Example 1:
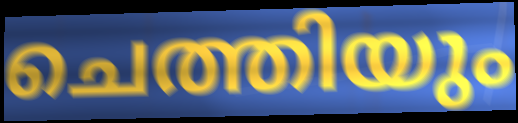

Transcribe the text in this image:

ചെത്തിയും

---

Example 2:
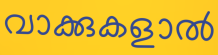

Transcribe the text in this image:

വാക്കുകളാൽ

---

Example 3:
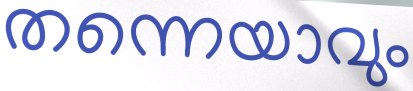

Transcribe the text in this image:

തന്നെയാവും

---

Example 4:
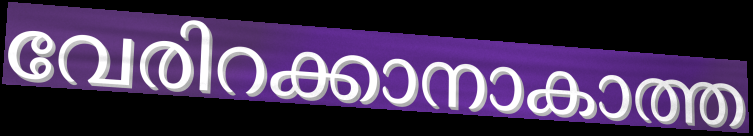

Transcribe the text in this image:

വേരിറക്കാനാകാത്ത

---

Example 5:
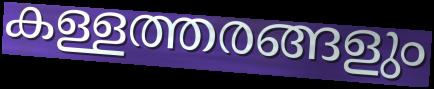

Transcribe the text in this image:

കള്ളത്തരങ്ങളും